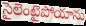
సైలెంటైపోయాను